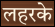
लहरके